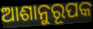
ଆଶାନୁରୂପକ